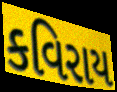
કવિરાય